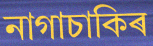
নাগাচাকিৰ